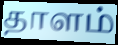
தாளம்